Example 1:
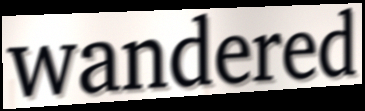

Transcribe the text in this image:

wandered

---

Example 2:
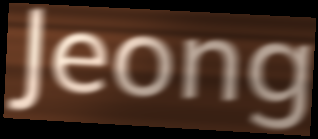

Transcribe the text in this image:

Jeong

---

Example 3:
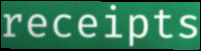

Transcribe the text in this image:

receipts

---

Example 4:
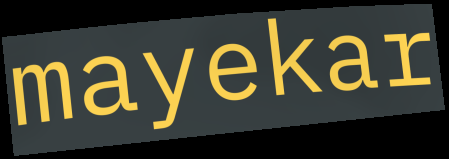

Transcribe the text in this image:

mayekar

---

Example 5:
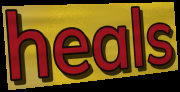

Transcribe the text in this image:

heals